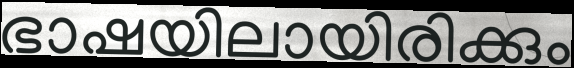
ഭാഷയിലായിരിക്കും